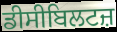
ਡੀਸੀਬਿਲਟਜ਼